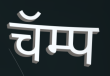
चॅम्प